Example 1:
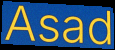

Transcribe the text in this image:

Asad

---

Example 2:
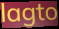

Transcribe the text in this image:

lagto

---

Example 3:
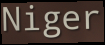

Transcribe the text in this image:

Niger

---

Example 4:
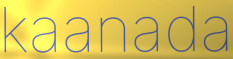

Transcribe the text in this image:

kaanada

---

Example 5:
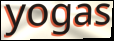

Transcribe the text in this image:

yogas